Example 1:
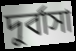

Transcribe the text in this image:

দুর্বাসা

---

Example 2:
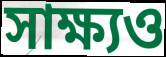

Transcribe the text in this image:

সাক্ষ্যও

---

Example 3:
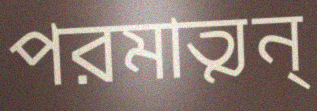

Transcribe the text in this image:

পরমাত্মন্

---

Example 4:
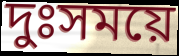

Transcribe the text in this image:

দুঃসময়ে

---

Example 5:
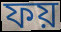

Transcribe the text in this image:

ফয়